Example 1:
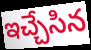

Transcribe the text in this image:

ఇచ్చేసిన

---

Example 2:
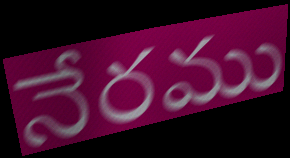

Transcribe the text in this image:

నేరము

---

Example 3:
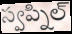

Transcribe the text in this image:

స్వప్నిల్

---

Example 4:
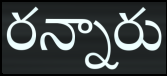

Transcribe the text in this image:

రన్నారు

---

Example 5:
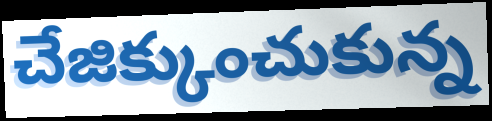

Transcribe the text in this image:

చేజిక్కుంచుకున్న